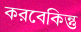
করবেকিন্তু